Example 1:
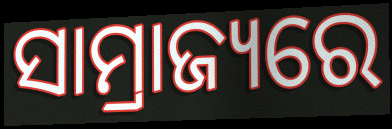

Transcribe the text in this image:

ସାମ୍ରାଜ୍ୟରେ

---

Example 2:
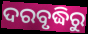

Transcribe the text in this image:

ଦରବୃଦ୍ଧିରୁ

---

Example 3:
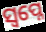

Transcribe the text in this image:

ସ୍ବପ୍ନେ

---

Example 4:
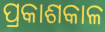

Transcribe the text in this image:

ପ୍ରକାଶକାଳ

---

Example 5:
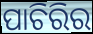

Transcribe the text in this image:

ପାଚିରିର